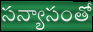
సన్యాసంతో